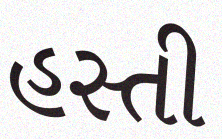
હસ્તી